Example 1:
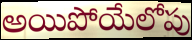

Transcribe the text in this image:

అయిపోయేలోపు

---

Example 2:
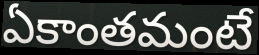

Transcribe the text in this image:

ఏకాంతమంటే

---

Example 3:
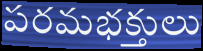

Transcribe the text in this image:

పరమభక్తులు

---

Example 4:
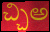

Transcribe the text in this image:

చ్చిఅ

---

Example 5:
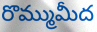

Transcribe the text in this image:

రొమ్ముమీద